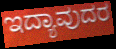
ಇದ್ಯಾವುದರ